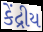
કેંદ્રીય